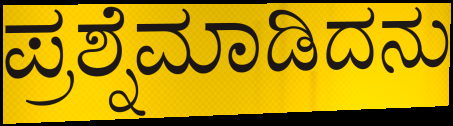
ಪ್ರಶ್ನೆಮಾಡಿದನು